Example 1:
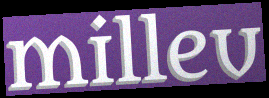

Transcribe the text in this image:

milleu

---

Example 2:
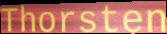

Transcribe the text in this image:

Thorsten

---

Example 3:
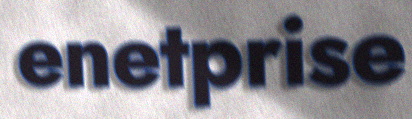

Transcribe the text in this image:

enetprise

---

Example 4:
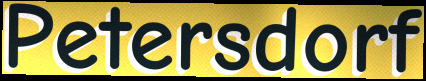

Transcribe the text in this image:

Petersdorf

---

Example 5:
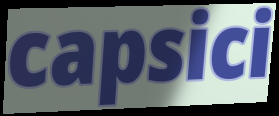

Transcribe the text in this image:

capsici